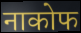
नाकोफ